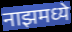
नाझमध्ये